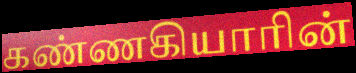
கண்ணகியாரின்